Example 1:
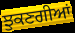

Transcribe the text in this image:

ਝੁਕਣਗੀਆਂ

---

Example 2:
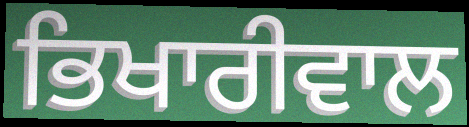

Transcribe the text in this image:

ਭਿਖਾਰੀਵਾਲ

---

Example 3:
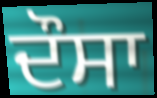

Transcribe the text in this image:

ਦੌਸਾ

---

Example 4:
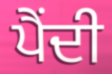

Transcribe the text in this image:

ਪੈਂਦੀ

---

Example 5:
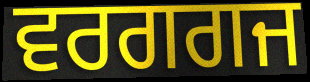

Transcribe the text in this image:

ਵਰਗਗਜ